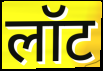
लॉट